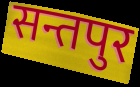
सन्तपुर